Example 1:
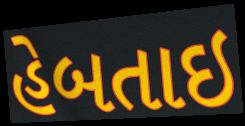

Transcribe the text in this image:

હેબતાઇ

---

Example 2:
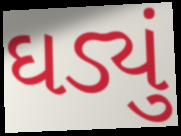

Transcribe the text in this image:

ઘડ્યું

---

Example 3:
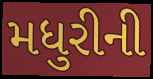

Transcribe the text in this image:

મધુરીની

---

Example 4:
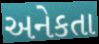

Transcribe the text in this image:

અનેકતા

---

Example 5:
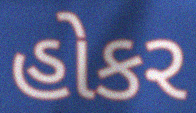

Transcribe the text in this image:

હોકર